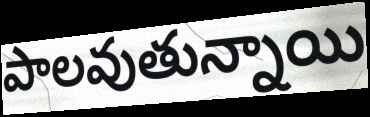
పాలవుతున్నాయి